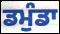
ਡਮੁੰਡਾ